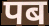
पब